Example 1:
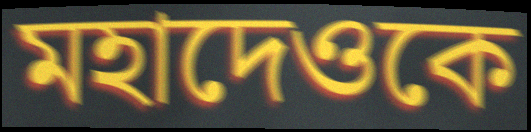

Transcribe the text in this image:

মহাদেওকে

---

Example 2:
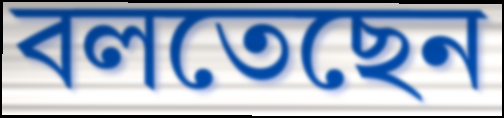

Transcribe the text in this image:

বলতেছেন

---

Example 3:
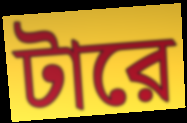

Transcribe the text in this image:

টারে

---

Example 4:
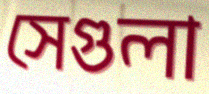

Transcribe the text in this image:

সেগুলা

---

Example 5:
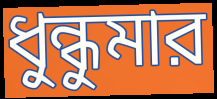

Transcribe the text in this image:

ধুন্ধুমার